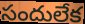
సందులేక